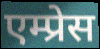
एम्प्रेस